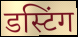
डस्टिंग